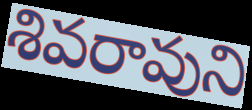
శివరావుని